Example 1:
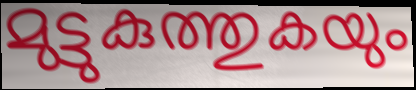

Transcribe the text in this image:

മുട്ടുകുത്തുകയും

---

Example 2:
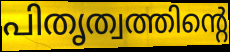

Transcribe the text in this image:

പിതൃത്വത്തിന്റെ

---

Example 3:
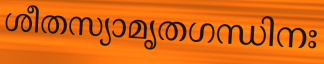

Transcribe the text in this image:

ശീതസ്യാമൃതഗന്ധിനഃ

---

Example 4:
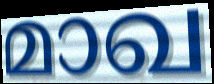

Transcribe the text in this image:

മാഖ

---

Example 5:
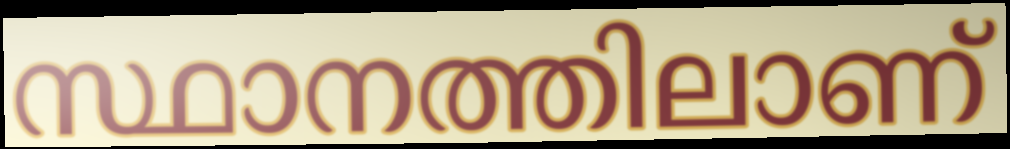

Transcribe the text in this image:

സ്ഥാനത്തിലാണ്